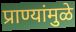
प्राण्यांमुळे